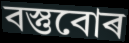
বস্তুবোৰ